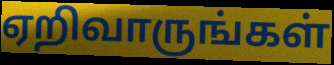
ஏறிவாருங்கள்